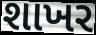
શાખર